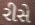
રીસે